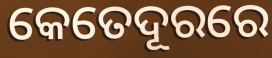
କେତେଦୂରରେ